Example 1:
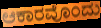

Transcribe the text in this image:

ಆಕಾರವೊಂದು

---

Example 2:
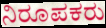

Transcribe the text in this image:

ನಿರೂಪಕರು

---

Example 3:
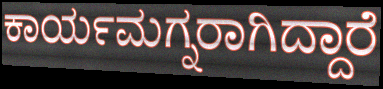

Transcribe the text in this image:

ಕಾರ್ಯಮಗ್ನರಾಗಿದ್ದಾರೆ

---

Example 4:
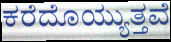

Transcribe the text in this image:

ಕರೆದೊಯ್ಯುತ್ತವೆ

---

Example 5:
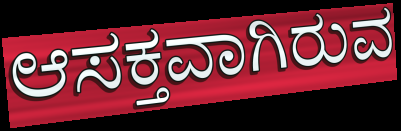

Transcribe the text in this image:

ಆಸಕ್ತವಾಗಿರುವ